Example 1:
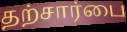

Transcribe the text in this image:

தற்சார்பை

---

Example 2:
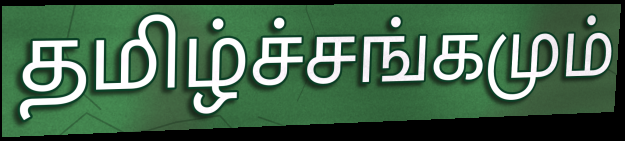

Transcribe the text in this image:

தமிழ்ச்சங்கமும்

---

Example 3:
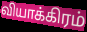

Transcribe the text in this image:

வியாக்கிரம்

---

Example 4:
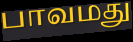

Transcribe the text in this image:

பாவமது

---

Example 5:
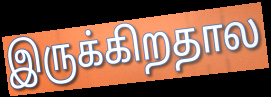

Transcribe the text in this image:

இருக்கிறதால